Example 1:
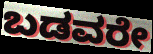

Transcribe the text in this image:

ಬಡವರೇ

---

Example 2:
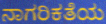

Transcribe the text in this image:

ನಾಗರಿಕತೆಯ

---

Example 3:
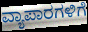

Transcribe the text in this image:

ವ್ಯಾಪಾರಗಳಿಗೆ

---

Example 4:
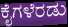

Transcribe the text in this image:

ಕೈಗಳೆರಡು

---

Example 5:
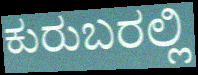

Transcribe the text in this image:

ಕುರುಬರಲ್ಲಿ